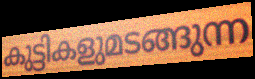
കുട്ടികളുമടങ്ങുന്ന